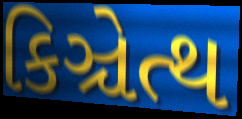
કિઞ્ચેત્થ